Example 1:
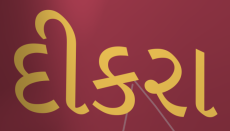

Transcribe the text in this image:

દીકરા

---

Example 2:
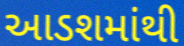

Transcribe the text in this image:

આડશમાંથી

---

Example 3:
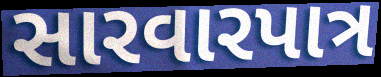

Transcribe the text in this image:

સારવારપાત્ર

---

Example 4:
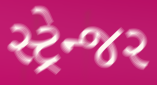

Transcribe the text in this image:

સ્ટ્રેન્જર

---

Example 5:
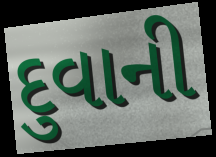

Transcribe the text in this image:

દુવાની